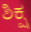
ಶಿಕ್ಷ